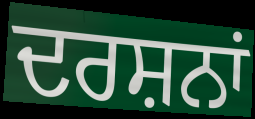
ਦਰਸ਼ਨਾਂ